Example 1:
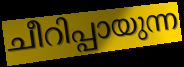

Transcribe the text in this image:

ചീറിപ്പായുന്ന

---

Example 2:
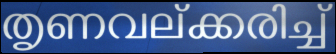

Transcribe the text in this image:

തൃണവല്ക്കരിച്ച്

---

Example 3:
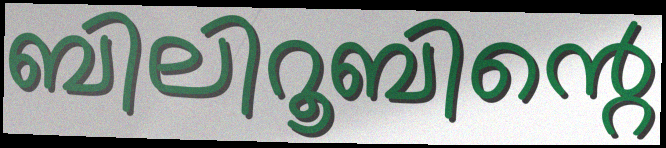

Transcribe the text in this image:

ബിലിറൂബിന്റെ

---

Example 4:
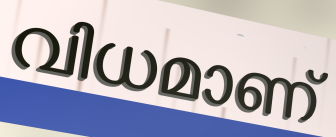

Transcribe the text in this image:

വിധമാണ്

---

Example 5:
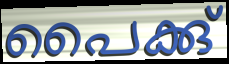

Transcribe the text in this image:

പൈക്കു്